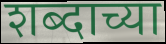
शब्दाच्या